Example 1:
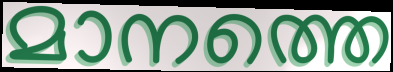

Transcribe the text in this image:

മാനത്തെ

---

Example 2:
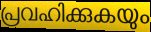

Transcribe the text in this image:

പ്രവഹിക്കുകയും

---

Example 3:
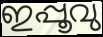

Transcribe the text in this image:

ഇപ്പൂവു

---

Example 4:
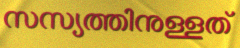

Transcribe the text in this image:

സസ്യത്തിനുള്ളത്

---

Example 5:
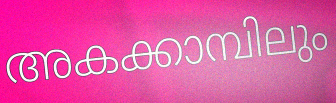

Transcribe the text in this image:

അകക്കാമ്പിലും